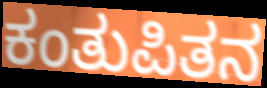
ಕಂತುಪಿತನ